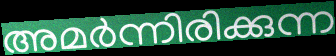
അമർന്നിരിക്കുന്ന